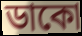
ডাকো